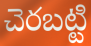
చెరబట్టి